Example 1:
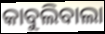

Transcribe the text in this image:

କାବୁଲିବାଲା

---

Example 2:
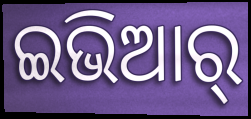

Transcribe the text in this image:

ଇଭିଆର୍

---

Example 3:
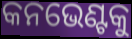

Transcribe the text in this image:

କନଭେଣ୍ଟକୁ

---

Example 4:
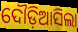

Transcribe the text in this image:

ଦୌଡ଼ିଆସିଲା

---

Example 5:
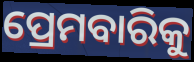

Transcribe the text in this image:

ପ୍ରେମବାରିକୁ